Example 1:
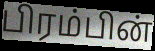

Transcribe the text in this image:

பிரம்பின்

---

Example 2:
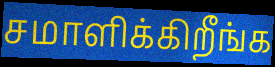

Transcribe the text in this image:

சமாளிக்கிறீங்க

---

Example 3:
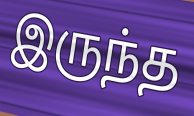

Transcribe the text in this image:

இருந்த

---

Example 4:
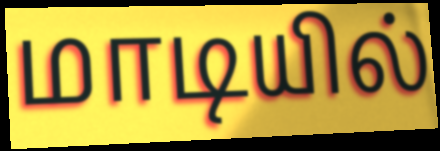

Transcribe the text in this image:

மாடியில்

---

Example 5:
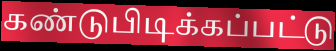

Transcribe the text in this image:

கண்டுபிடிக்கப்பட்டு